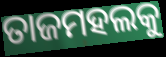
ତାଜମହଲକୁ